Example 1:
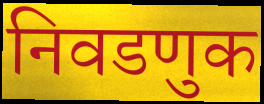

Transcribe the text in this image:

निवडणुक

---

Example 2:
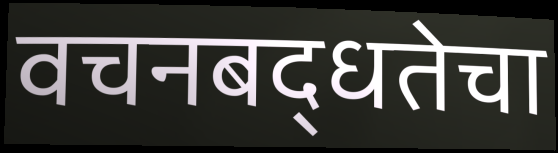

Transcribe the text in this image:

वचनबद्धतेचा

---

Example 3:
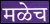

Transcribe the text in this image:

मळेच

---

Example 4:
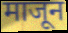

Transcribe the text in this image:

माजून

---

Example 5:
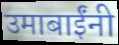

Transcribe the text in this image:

उमाबाईंनी